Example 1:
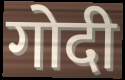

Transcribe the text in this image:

गोदी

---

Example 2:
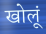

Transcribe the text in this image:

खोलूं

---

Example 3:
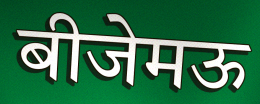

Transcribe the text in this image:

बीजेमऊ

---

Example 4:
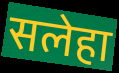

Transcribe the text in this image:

सलेहा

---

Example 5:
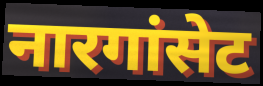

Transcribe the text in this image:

नारगांसेट